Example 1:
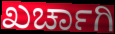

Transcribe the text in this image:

ಖರ್ಚಾಗಿ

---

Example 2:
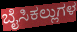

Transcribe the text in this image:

ಬೈಸಿಕಲ್ಲುಗಳ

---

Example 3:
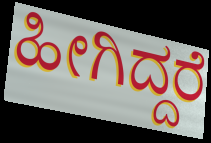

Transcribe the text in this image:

ಹೀಗಿದ್ದರೆ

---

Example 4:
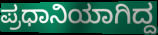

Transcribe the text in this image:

ಪ್ರಧಾನಿಯಾಗಿದ್ದ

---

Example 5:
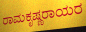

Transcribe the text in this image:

ರಾಮಕೃಷ್ಣರಾಯರ